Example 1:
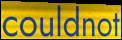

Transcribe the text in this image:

couldnot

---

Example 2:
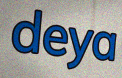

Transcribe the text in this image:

deya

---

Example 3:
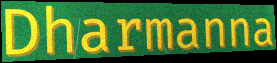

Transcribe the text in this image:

Dharmanna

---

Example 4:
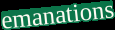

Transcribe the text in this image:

emanations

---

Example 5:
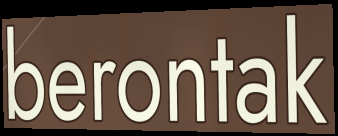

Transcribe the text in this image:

berontak